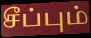
சீப்பும்